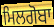
ਮਿਲਗੋਬਾ